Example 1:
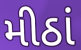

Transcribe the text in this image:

મીઠાં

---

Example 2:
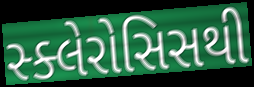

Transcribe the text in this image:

સ્ક્લેરોસિસથી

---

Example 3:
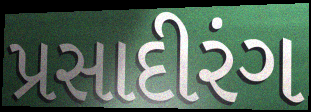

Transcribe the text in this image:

પ્રસાદીરંગ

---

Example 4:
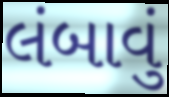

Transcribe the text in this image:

લંબાવું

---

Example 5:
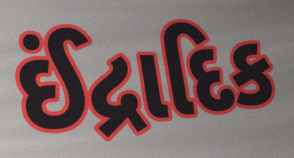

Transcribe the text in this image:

ઈંદ્રાદિક